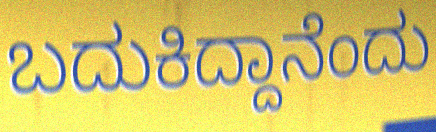
ಬದುಕಿದ್ದಾನೆಂದು